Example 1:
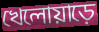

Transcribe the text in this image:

খেলোয়াড়ে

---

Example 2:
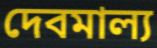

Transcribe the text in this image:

দেবমাল্য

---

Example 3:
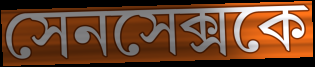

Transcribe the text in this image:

সেনসেক্সকে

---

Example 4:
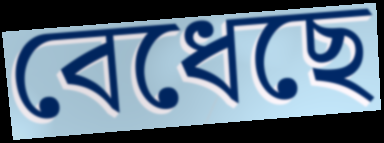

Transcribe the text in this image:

বেধেছে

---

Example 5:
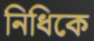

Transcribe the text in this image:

নিধিকে